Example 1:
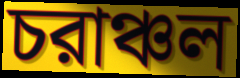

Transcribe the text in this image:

চরাঞ্চল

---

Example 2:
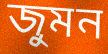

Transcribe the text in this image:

জুমন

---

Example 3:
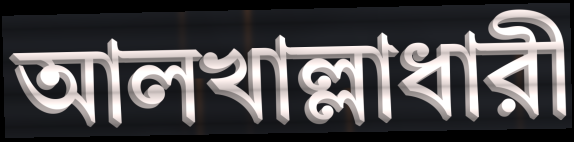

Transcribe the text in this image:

আলখাল্লাধারী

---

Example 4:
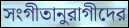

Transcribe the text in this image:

সংগীতানুরাগীদের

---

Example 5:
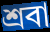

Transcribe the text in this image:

শ্রবা